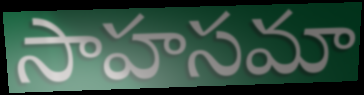
సాహసమా